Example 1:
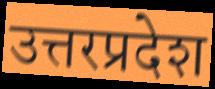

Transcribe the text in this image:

उत्तरप्रदेश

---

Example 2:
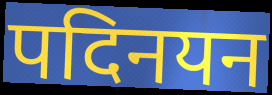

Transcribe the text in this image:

पदिनयन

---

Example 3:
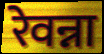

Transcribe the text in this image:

रेवन्ना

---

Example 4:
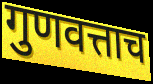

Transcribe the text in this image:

गुणवत्ताच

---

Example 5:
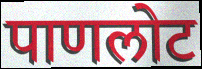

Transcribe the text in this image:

पाणलोट